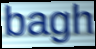
bagh